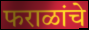
फराळांचे